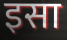
इसा